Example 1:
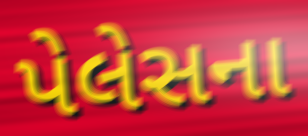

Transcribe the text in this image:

પેલેસના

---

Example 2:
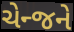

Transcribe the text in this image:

ચેન્જને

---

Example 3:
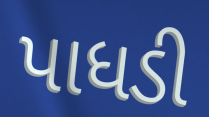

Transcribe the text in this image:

પાધડી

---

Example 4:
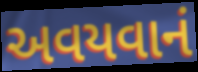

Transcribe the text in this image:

અવયવાનં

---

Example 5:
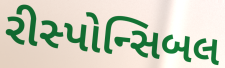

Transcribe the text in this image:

રીસ્પોન્સિબલ